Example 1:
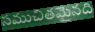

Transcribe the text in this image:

సముచితమైనది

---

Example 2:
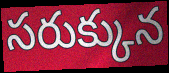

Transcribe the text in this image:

సరుక్కున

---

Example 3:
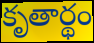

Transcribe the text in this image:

కృతార్థం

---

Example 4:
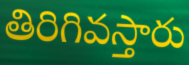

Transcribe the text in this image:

తిరిగివస్తారు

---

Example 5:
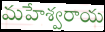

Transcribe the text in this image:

మహేశ్వరాయ